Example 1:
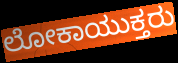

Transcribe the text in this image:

ಲೋಕಾಯುಕ್ತರು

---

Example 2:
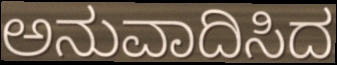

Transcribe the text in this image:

ಅನುವಾದಿಸಿದ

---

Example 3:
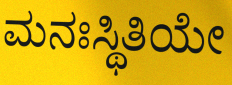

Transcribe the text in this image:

ಮನಃಸ್ಥಿತಿಯೇ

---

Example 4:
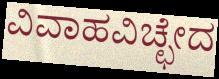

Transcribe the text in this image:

ವಿವಾಹವಿಚ್ಛೇದ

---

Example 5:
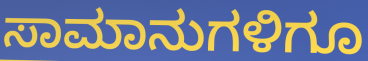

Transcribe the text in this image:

ಸಾಮಾನುಗಳಿಗೂ